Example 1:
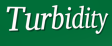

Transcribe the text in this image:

Turbidity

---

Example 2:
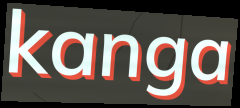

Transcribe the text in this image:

kanga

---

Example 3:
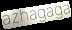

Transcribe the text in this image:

azhagaga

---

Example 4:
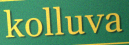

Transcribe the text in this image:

kolluva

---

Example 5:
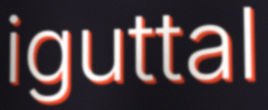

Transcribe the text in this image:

iguttal